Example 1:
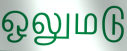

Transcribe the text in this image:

ஒலுமடு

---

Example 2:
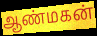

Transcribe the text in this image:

ஆண்மகன்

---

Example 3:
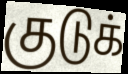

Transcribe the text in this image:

குடுக்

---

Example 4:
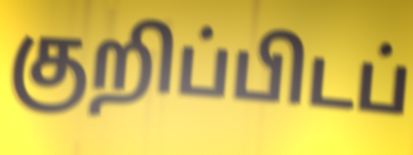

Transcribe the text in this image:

குறிப்பிடப்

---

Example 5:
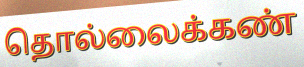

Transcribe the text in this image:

தொல்லைக்கண்